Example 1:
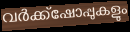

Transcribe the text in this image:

വർക്ക്ഷോപ്പുകളും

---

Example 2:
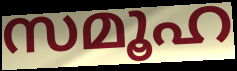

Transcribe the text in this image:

സമൂഹ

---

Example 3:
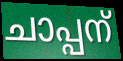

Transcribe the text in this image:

ചാപ്പന്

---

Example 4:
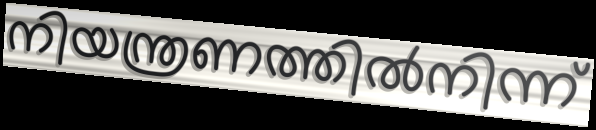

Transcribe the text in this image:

നിയന്ത്രണത്തിൽനിന്ന്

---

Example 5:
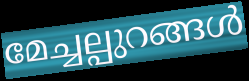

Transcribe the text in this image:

മേച്ചല്പുറങ്ങൾ